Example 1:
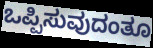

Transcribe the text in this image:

ಒಪ್ಪಿಸುವುದಂತೂ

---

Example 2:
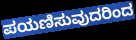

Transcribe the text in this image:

ಪಯಣಿಸುವುದರಿಂದ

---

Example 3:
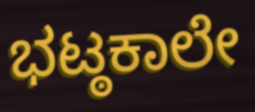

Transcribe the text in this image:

ಭಟ್ಠಕಾಲೇ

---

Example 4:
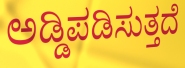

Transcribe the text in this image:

ಅಡ್ಡಿಪಡಿಸುತ್ತದೆ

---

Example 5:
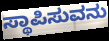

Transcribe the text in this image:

ಸ್ಥಾಪಿಸುವನು